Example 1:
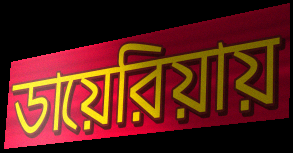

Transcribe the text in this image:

ডায়েরিয়ায়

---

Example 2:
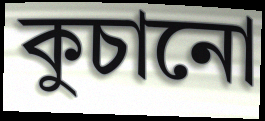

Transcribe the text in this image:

কুচানো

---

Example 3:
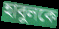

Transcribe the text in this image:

হাবুলকে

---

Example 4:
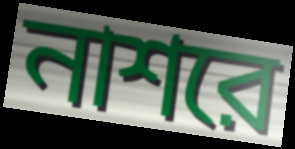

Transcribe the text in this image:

নাশরে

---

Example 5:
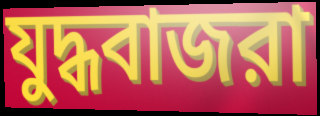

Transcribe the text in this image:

যুদ্ধবাজরা